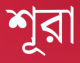
শূরা